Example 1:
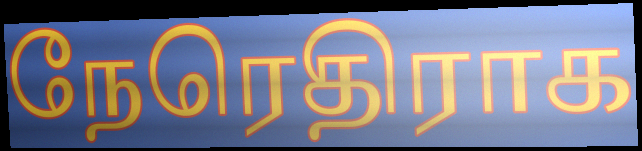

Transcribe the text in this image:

நேரெதிராக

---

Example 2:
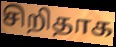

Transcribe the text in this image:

சிறிதாக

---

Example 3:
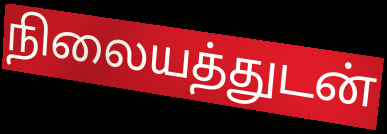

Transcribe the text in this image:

நிலையத்துடன்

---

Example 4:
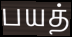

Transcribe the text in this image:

பயத்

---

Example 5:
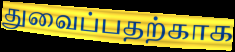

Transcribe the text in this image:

துவைப்பதற்காக